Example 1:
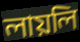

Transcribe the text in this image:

লায়লি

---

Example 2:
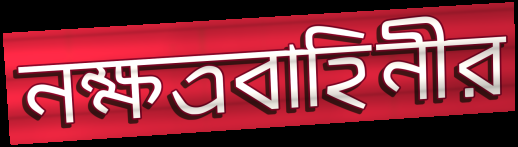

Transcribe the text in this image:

নক্ষত্রবাহিনীর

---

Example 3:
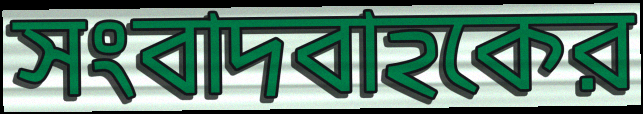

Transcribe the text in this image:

সংবাদবাহকের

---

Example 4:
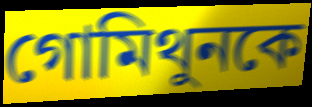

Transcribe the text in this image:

গোমিথুনকে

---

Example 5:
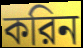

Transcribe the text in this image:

করিন